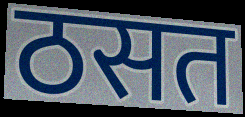
ठसत